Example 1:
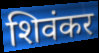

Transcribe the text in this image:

शिवंकर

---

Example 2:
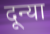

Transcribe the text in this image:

दून्या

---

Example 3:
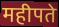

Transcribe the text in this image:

महीपते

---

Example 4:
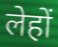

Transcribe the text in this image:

लेहों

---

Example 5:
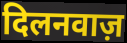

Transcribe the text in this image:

दिलनवाज़